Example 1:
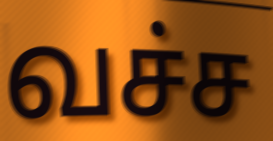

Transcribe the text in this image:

வச்ச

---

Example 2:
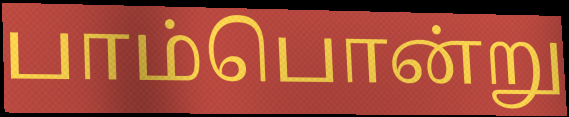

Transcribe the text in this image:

பாம்பொன்று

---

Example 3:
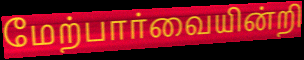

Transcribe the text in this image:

மேற்பார்வையின்றி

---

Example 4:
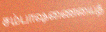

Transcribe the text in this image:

சம்பாஷணையைத்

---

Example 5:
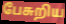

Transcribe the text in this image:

பேசுறிய